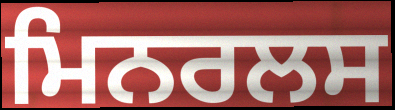
ਮਿਨਰਲਸ